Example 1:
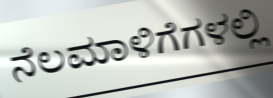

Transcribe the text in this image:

ನೆಲಮಾಳಿಗೆಗಳಲ್ಲಿ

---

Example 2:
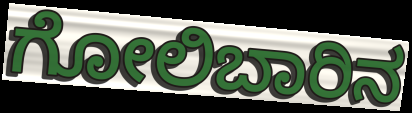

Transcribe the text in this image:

ಗೋಲಿಬಾರಿನ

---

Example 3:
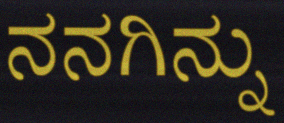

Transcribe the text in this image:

ನನಗಿನ್ನು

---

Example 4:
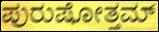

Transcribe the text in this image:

ಪುರುಷೋತ್ತಮ್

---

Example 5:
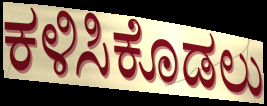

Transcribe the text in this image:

ಕಳಿಸಿಕೊಡಲು